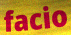
facio